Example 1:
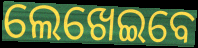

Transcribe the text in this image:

ଲେଖେଇବେ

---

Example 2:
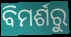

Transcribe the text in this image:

ବିମର୍ଶରୁ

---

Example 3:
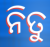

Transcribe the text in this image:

ନିତୁ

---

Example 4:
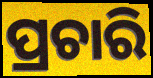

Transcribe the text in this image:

ପ୍ରଚାରି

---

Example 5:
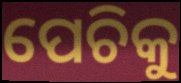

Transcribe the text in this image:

ପେଚିକୁ